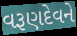
વરૂણદેવને